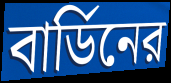
বার্ডিনের